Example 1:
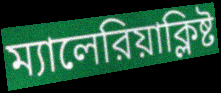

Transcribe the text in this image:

ম্যালেরিয়াক্লিষ্ট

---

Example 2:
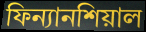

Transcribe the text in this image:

ফিন্যানশিয়াল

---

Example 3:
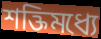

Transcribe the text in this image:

শক্তিমধ্যে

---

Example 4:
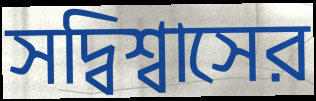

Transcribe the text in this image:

সদ্বিশ্বাসের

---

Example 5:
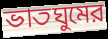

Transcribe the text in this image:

ভাতঘুমের